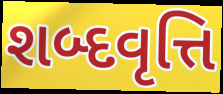
શબ્દવૃત્તિ